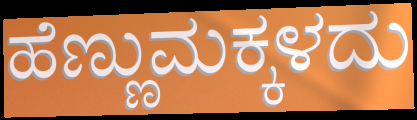
ಹೆಣ್ಣುಮಕ್ಕಳದು